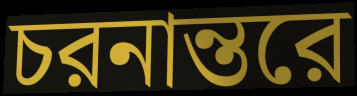
চরনান্তরে